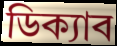
ডিক্যাব